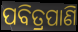
ପବିତ୍ରପାଣି